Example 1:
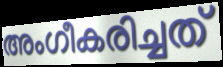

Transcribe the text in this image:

അംഗീകരിച്ചത്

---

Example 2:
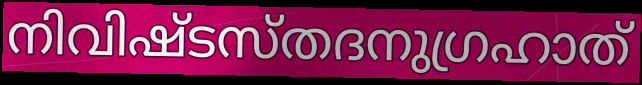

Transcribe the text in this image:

നിവിഷ്ടസ്തദനുഗ്രഹാത്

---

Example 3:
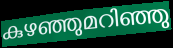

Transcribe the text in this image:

കുഴഞ്ഞുമറിഞ്ഞു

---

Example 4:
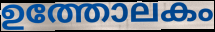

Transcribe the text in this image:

ഉത്തോലകം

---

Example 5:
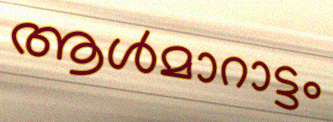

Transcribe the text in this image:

ആൾമാറാട്ടം